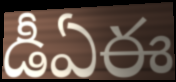
డీఏఈ